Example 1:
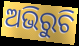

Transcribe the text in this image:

ଅଭିରୁଚି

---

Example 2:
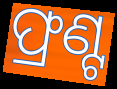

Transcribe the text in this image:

ଫ୍ରଣ୍ଟ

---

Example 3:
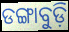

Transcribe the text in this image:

ଡଙ୍ଗାବୁଡ଼ି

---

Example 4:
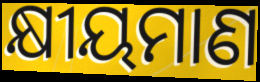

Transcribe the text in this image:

କ୍ଷୀୟମାଣ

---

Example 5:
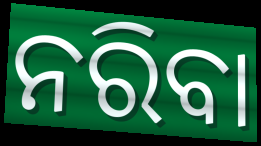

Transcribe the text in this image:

ନରିବା